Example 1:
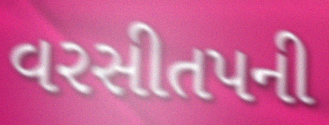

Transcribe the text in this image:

વરસીતપની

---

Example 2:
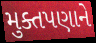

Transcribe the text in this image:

મુક્તપણાને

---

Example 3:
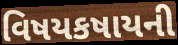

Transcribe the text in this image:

વિષયકષાયની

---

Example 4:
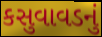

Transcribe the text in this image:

કસુવાવડનું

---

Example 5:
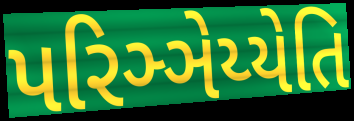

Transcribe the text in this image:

પરિઞ્ઞેય્યેતિ